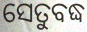
ସେତୁବଦ୍ଧ